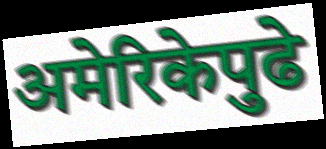
अमेरिकेपुढे